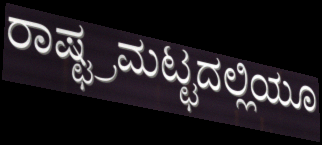
ರಾಷ್ಟ್ರಮಟ್ಟದಲ್ಲಿಯೂ